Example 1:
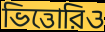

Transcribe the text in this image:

ভিত্তোরিও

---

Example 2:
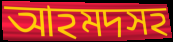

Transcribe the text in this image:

আহমদসহ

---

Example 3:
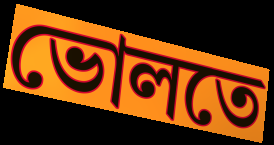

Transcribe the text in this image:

ভোলতে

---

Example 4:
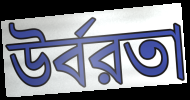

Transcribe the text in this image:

উর্বরতা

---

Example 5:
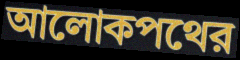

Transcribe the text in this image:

আলোকপথের